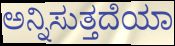
ಅನ್ನಿಸುತ್ತದೆಯಾ